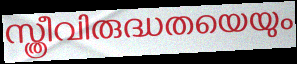
സ്ത്രീവിരുദ്ധതയെയും